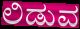
ಲಿಡುವ